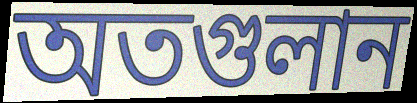
অতগুলান